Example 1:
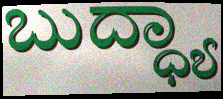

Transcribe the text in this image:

ಬುದ್ಧ್ಯಾ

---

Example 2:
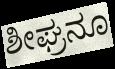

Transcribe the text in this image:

ಶೀಘ್ರನೂ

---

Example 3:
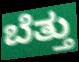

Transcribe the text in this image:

ಬೆತ್ತು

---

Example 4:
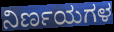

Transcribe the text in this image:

ನಿರ್ಣಯಗಳ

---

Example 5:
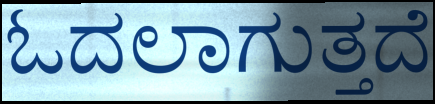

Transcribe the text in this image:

ಓದಲಾಗುತ್ತದೆ